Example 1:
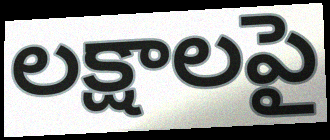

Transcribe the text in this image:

లక్షాలపై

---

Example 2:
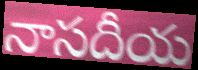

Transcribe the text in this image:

నాసదీయ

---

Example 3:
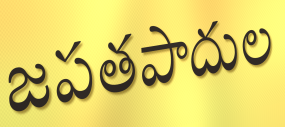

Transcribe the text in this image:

జపతపాదుల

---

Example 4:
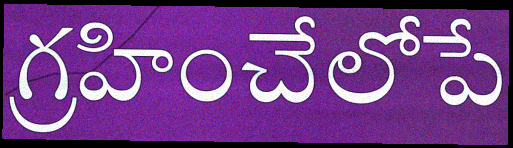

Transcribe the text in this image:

గ్రహించేలోపే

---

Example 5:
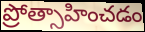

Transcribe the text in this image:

ప్రోత్సాహించడం